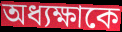
অধ্যক্ষাকে